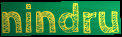
nindru